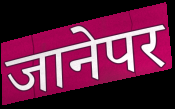
जानेपर